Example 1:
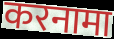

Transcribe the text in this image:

करनामा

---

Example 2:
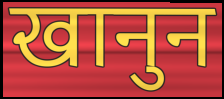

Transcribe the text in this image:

खानुन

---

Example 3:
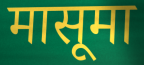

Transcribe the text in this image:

मासूमा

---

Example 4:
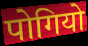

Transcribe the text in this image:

पोगियो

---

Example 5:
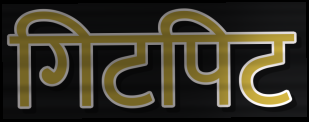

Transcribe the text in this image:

गिटपिट